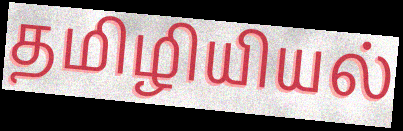
தமிழியியல்